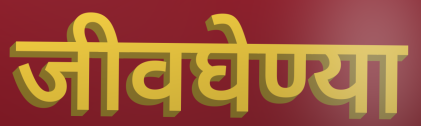
जीवघेण्या